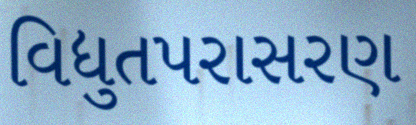
વિદ્યુતપરાસરણ